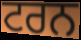
ਟਰਨ